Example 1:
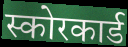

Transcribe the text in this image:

स्कोरकार्ड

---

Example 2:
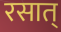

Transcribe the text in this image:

रसात्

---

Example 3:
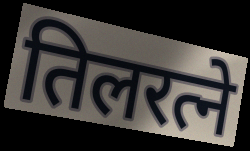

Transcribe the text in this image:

तिलरत्ने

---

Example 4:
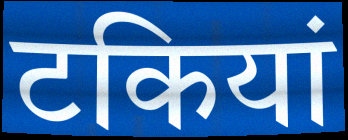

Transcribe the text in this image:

टकियां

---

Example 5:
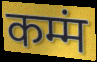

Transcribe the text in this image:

कम्मं